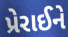
પ્રેરાઈને